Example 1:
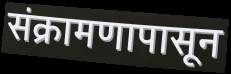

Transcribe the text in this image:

संक्रामणापासून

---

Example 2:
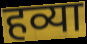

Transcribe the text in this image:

हव्या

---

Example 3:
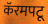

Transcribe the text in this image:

कॅरमपटू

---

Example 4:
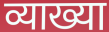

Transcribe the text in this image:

व्याख्या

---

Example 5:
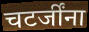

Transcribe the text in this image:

चटर्जींना